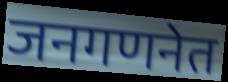
जनगणनेत